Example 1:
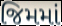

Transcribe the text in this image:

જિમમાં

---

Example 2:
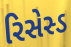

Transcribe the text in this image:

રિસેસ્ડ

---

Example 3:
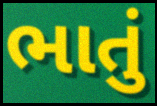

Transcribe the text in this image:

ભાતું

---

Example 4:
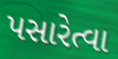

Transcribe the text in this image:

પસારેત્વા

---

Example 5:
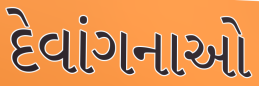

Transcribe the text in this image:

દેવાંગનાઓ